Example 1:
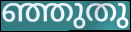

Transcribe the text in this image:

ഞ്ഞുതു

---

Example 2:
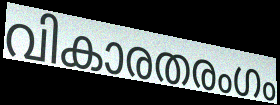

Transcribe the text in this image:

വികാരതരംഗം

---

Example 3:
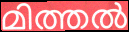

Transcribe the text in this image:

മിത്തൽ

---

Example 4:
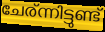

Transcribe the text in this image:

ചേര്ന്നിട്ടുണ്ട്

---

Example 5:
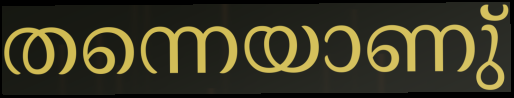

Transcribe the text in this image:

തന്നെയാണു്